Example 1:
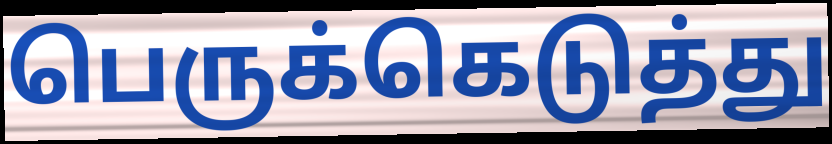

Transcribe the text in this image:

பெருக்கெடுத்து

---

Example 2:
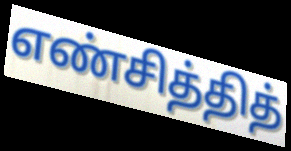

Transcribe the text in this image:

எண்சித்தித்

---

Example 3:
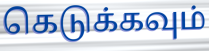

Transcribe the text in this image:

கெடுக்கவும்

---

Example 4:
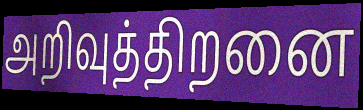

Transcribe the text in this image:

அறிவுத்திறனை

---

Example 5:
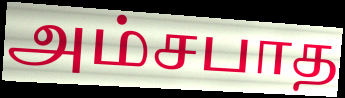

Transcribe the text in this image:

அம்சபாத